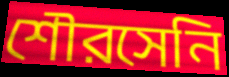
শৌরসেনি